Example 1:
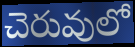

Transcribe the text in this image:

చెరువులో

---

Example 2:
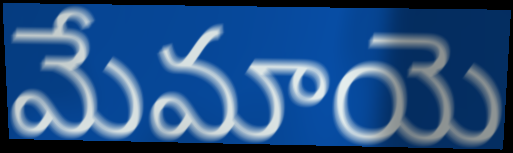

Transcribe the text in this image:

మేమాయె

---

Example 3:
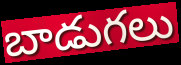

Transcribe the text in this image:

బాడుగలు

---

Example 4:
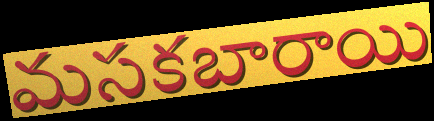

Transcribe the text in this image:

మసకబారాయి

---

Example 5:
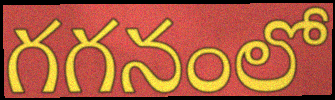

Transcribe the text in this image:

గగనంలో